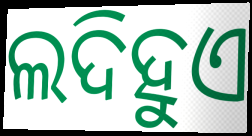
ଲଦିହୁଏ